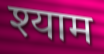
श्‍याम